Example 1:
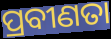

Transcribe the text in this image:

ପ୍ରବୀଣତା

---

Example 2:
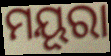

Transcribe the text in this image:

ମୟୂରା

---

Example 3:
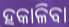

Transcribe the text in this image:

ହକାଳିବା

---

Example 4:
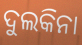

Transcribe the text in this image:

ଦୁଲକିନା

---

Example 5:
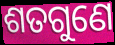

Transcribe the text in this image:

ଶତଗୁଣେ